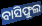
ବାସିଫୁଲ